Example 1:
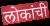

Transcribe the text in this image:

लोकांची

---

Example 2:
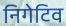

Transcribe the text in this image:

निगेटिव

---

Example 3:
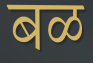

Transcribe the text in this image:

बळ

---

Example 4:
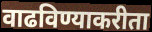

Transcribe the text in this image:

वाढविण्याकरीता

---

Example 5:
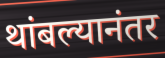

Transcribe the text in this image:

थांबल्यानंतर